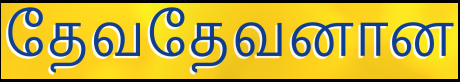
தேவதேவனான